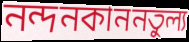
নন্দনকাননতুল্য